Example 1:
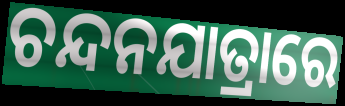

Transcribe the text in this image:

ଚନ୍ଦନଯାତ୍ରାରେ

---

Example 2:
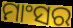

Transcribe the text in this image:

ମାଂସର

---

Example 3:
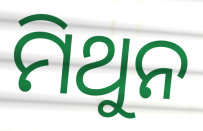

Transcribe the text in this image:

ମିଥୁନ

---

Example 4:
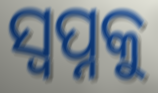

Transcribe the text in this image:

ସ୍ବପ୍ନକୁ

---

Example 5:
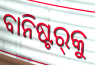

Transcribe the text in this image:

ବାନିଷ୍ଟର୍‍କୁ